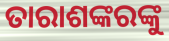
ତାରାଶଙ୍କରଙ୍କୁ